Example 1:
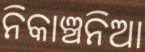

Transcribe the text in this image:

ନିକାଞ୍ଚନିଆ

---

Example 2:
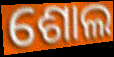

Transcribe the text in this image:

ଶୋଲ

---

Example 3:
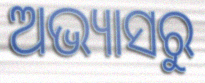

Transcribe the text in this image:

ଅଭ୍ୟାସରୁ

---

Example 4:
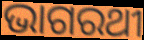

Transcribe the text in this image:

ଭାଗରଥୀ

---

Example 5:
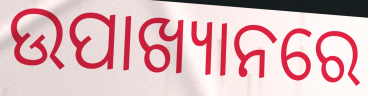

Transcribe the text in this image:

ଉପାଖ୍ୟାନରେ